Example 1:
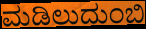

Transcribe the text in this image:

ಮಡಿಲುದುಂಬಿ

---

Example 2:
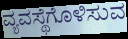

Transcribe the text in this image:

ವ್ಯವಸ್ಥೆಗೊಳಿಸುವ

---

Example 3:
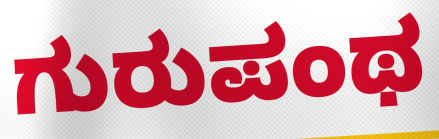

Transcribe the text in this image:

ಗುರುಪಂಥ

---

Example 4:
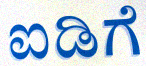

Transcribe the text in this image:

ಐಡಿಗೆ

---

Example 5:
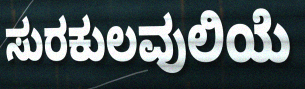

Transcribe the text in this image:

ಸುರಕುಲವುಲಿಯೆ